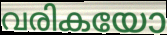
വരികയോ